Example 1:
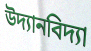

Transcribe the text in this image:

উদ্যানবিদ্যা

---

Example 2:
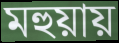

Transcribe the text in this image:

মহুয়ায়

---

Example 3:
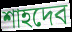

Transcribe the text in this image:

শাহদেব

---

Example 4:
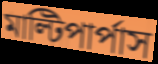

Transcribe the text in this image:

মাল্টিপার্পাস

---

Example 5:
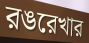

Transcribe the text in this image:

রঙরেখার